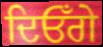
ਦਿਓਁਗੇ